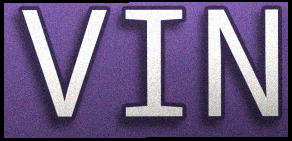
VIN